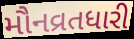
મૌનવ્રતધારી